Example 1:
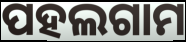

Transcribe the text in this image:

ପହଲଗାମ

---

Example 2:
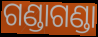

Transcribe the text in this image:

ଗଣ୍ଡାଗଣ୍ଡା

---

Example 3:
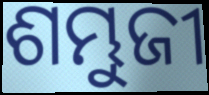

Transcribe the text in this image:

ଶମ୍ଭୁଜୀ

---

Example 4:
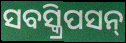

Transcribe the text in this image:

ସବସ୍କ୍ରିପସନ୍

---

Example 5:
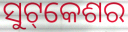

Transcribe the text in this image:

ସୁଟ୍‌କେଶର